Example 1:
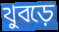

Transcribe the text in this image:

থুবড়ে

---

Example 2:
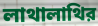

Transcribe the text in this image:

লাথালাথির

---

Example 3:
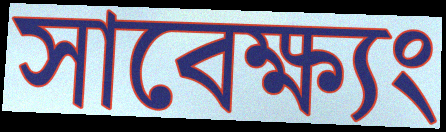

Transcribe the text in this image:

সাবেক্ষ্যং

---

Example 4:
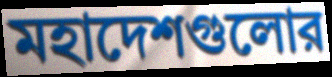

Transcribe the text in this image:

মহাদেশগুলোর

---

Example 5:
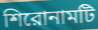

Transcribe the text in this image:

শিরোনামটি